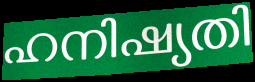
ഹനിഷ്യതി